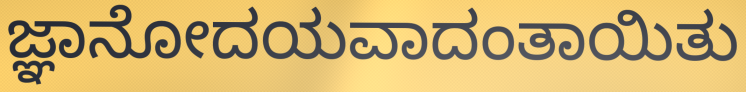
ಜ್ಞಾನೋದಯವಾದಂತಾಯಿತು